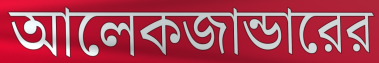
আলেকজান্ডারের